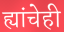
ह्यांचेही